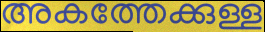
അകത്തേക്കുള്ള